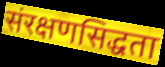
संरक्षणसिद्धता